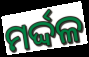
ମର୍ଦ୍ଦଳ